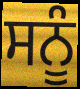
ਸਨੂੰ